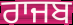
ਰਾਜਬ